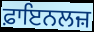
ਫ਼ਾਇਨਲਜ਼